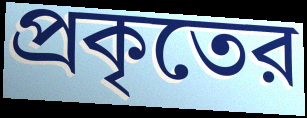
প্রকৃতের